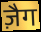
ज़ैग